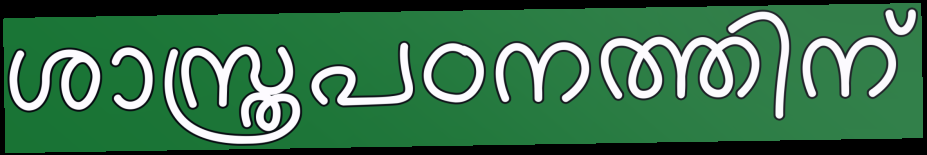
ശാസ്ത്രപഠനത്തിന്